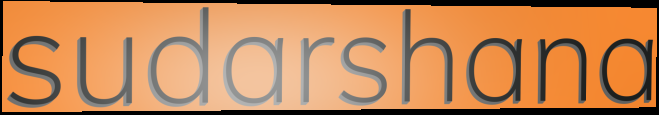
sudarshana